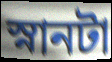
স্নানটা